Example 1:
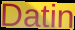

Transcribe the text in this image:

Datin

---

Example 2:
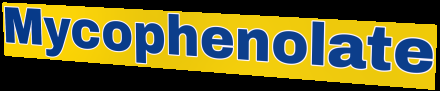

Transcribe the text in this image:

Mycophenolate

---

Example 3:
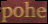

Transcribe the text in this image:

pohe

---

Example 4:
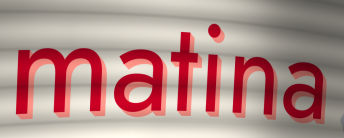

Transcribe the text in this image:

matina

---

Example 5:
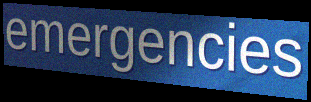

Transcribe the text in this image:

emergencies